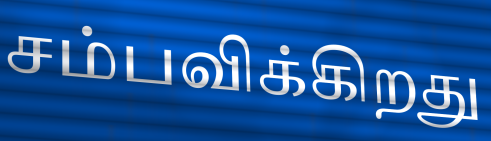
சம்பவிக்கிறது